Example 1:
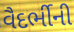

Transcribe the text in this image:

વૈદર્ભીની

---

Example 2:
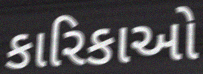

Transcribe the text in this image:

કારિકાઓ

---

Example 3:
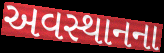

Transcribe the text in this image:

અવસ્થાનના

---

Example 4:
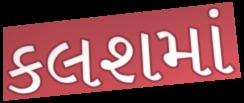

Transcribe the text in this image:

કલશમાં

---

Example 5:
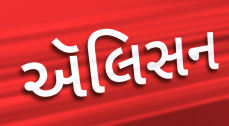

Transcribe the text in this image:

ઍલિસન